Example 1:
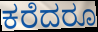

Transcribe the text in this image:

ಕರೆದರೂ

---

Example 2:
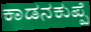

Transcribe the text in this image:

ಕಾಡನಕುಪ್ಪೆ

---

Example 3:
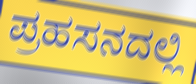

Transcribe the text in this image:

ಪ್ರಹಸನದಲ್ಲಿ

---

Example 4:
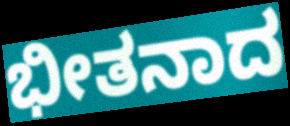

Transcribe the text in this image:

ಭೀತನಾದ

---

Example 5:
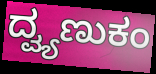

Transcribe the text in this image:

ದ್ವ್ಯಣುಕಂ